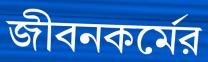
জীবনকর্মের